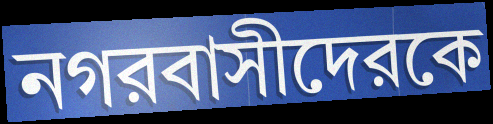
নগরবাসীদেরকে